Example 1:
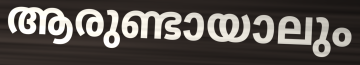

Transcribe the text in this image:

ആരുണ്ടായാലും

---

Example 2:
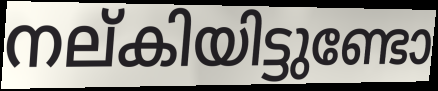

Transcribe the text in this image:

നല്കിയിട്ടുണ്ടോ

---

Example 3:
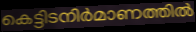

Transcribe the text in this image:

കെട്ടിടനിർമാണത്തിൽ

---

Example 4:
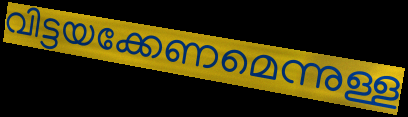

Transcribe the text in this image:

വിട്ടയക്കേണമെന്നുള്ള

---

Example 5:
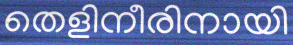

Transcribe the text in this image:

തെളിനീരിനായി